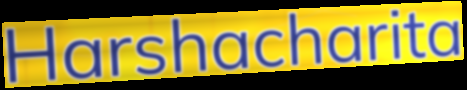
Harshacharita